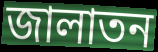
জালাতন